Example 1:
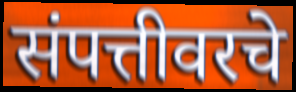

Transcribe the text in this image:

संपत्तीवरचे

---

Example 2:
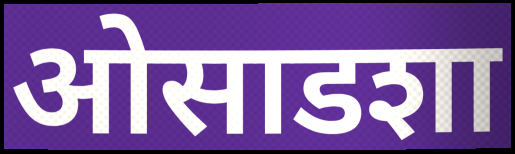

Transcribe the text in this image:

ओसाडशा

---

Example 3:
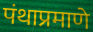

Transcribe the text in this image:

पंथाप्रमाणे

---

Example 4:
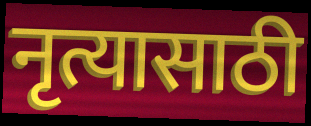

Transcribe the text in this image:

नृत्यासाठी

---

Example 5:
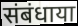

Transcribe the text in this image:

संबंधाया